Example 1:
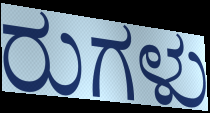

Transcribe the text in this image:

ರುಗಳು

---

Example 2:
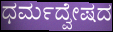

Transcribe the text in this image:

ಧರ್ಮದ್ವೇಷದ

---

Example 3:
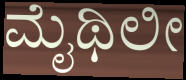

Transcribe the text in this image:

ಮೈಥಿಲೀ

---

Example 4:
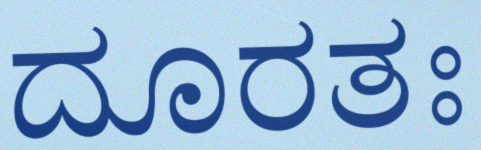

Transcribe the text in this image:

ದೂರತಃ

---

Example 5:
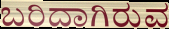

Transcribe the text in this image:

ಬರಿದಾಗಿರುವ